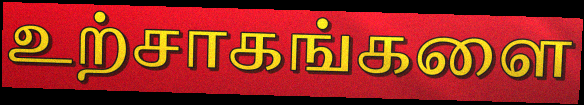
உற்சாகங்களை